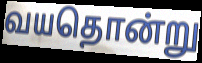
வயதொன்று